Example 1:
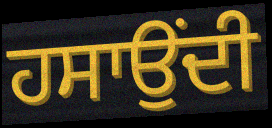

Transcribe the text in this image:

ਹਸਾਉਂਦੀ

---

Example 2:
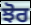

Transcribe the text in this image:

ਝੋਰ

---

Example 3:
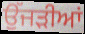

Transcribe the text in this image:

ਉੱਜੜੀਆਂ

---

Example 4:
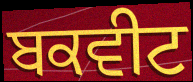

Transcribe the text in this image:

ਬਕਵੀਟ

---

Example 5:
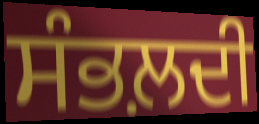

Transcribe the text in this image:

ਸੰਭਲ਼ਦੀ